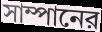
সাম্পানের